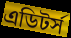
এডিটর্স